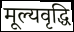
मूल्यवृद्धि